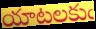
యాటలకుఁ